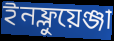
ইনফ্লুয়েঞ্জা